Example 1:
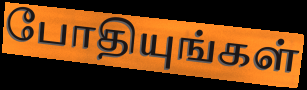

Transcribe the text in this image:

போதியுங்கள்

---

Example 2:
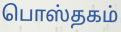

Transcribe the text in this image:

பொஸ்தகம்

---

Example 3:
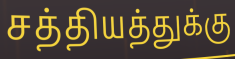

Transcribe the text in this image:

சத்தியத்துக்கு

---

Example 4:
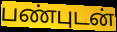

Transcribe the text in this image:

பண்புடன்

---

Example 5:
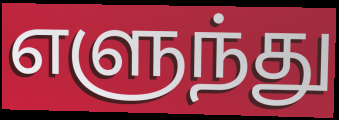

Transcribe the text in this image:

எளுந்து